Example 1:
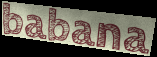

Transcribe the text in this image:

babana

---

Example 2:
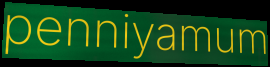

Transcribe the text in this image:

penniyamum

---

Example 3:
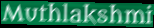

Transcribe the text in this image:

Muthlakshmi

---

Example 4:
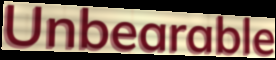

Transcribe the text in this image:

Unbearable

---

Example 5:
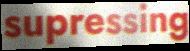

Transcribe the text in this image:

supressing